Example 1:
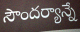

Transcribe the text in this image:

సౌందర్యాన్నే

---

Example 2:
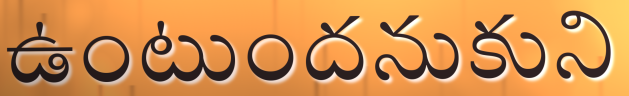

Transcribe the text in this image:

ఉంటుందనుకుని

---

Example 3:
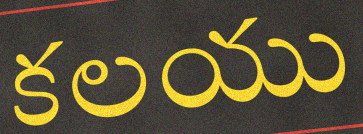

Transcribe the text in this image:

కలయు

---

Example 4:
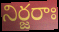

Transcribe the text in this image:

నిర్జరాః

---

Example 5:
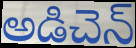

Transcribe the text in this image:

అడిచెన్